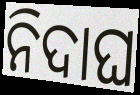
ନିଦାଘ